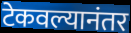
टेकवल्यानंतर